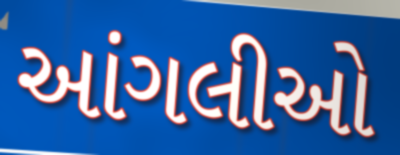
આંગલીઓ